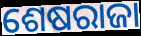
ଶେଷରାଜା